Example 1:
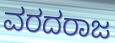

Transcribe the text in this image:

ವರದರಾಜ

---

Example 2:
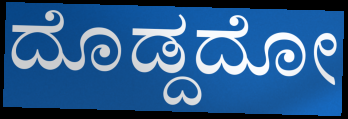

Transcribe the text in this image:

ದೊಡ್ದದೋ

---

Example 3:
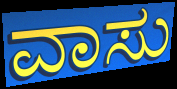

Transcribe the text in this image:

ವಾಸು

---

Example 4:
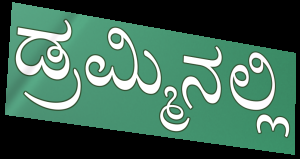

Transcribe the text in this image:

ಡ್ರಮ್ಮಿನಲ್ಲಿ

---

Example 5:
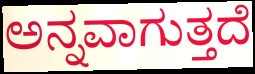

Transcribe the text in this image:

ಅನ್ನವಾಗುತ್ತದೆ